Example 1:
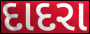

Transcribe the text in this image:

દાદરા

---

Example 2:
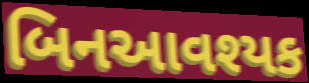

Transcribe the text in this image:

બિનઆવશ્યક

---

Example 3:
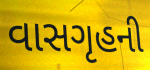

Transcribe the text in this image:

વાસગૃહની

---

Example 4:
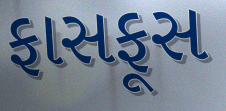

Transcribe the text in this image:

ફાસફૂસ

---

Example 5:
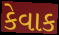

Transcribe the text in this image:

કેવાક